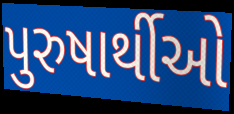
પુરુષાર્થીઓ